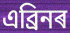
এব্ৰিনৰ